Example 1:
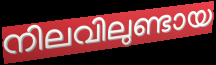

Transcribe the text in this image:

നിലവിലുണ്ടായ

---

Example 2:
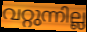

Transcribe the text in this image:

വറ്റുന്നില്ല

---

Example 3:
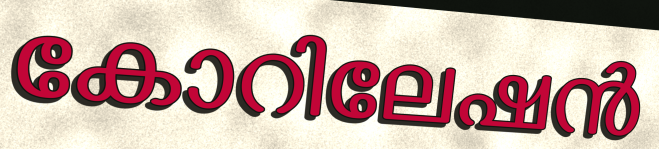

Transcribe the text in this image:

കോറിലേഷൻ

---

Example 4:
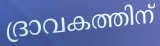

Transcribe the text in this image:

ദ്രാവകത്തിന്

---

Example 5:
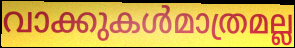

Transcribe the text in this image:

വാക്കുകൾമാത്രമല്ല